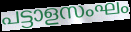
പട്ടാളസംഘം